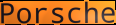
Porsche